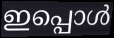
ഇപ്പൊൾ